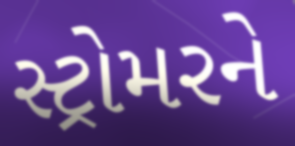
સ્ટ્રોમરને